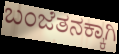
ಬಂಜೆತನಕ್ಕಾಗಿ